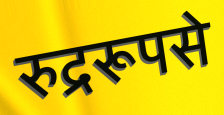
रुद्ररूपसे